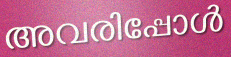
അവരിപ്പോൾ